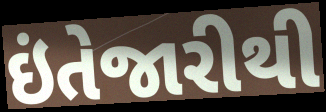
ઇંતેજારીથી